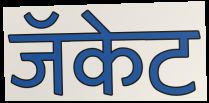
जॅकेट